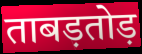
ताबड़तोड़